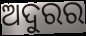
ଅଦୁରର